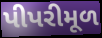
પીપરીમૂળ